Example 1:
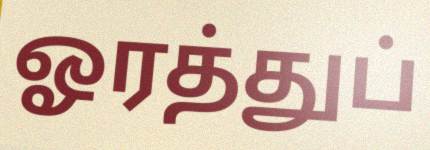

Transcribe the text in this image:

ஓரத்துப்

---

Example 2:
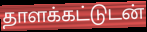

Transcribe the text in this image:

தாளக்கட்டுடன்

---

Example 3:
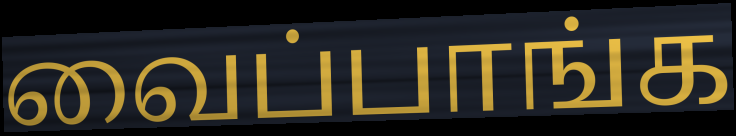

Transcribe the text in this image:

வைப்பாங்க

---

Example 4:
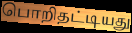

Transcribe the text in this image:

பொறிதட்டியது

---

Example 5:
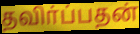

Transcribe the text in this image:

தவிர்ப்பதன்